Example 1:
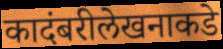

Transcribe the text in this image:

कादंबरीलेखनाकडे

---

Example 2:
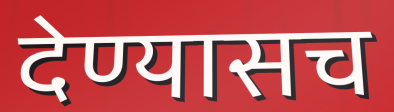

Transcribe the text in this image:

देण्यासच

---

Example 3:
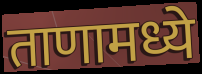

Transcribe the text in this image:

ताणामध्ये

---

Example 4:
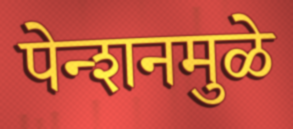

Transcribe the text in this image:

पेन्शनमुळे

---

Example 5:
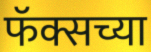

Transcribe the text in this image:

फॅक्सच्या